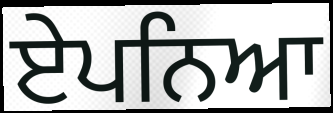
ਏਪਨਿਆ